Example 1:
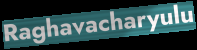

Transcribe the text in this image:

Raghavacharyulu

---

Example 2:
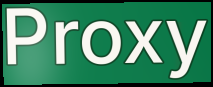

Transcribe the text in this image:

Proxy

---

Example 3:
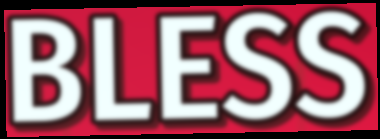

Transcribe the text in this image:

BLESS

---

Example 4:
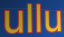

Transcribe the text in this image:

ullu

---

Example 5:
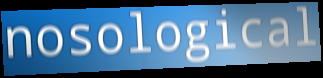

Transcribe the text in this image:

nosological